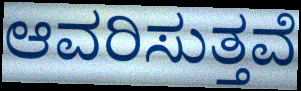
ಆವರಿಸುತ್ತವೆ